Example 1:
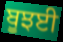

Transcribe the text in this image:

ਬੂਝਈ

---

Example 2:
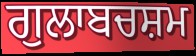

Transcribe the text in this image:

ਗੁਲਾਬਚਸ਼ਮ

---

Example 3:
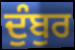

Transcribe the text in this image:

ਦੁੰਬੁਰ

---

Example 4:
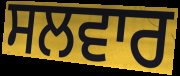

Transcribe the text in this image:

ਸਲਵਾਰ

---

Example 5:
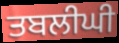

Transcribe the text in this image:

ਤਬਲੀਘੀ